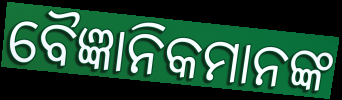
ବୈଜ୍ଞାନିକମାନଙ୍କ